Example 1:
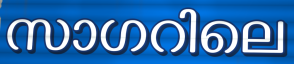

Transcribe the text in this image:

സാഗറിലെ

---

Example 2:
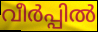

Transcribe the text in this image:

വീർപ്പിൽ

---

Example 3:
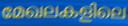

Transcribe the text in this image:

മേഖലകളിലെ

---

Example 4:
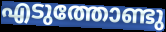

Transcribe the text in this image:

എടുത്തോണ്ടു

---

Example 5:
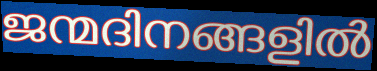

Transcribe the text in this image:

ജന്മദിനങ്ങളിൽ